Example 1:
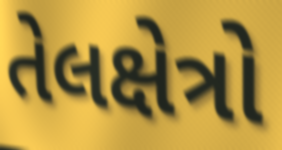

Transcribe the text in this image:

તેલક્ષેત્રો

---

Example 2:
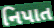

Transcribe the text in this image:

નિપાત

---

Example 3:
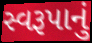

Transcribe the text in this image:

સ્વરૂપાનું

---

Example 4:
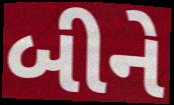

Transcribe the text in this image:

બીને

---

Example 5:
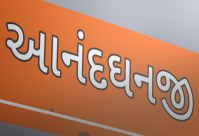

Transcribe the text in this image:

આનંદઘનજી